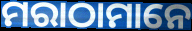
ମରାଠାମାନେ